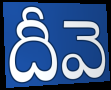
దీవె